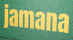
jamana